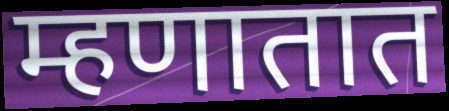
म्हणातात